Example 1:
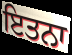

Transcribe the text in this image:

ਇਤਨਾ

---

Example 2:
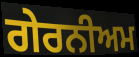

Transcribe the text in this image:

ਗੇਰਨੀਅਮ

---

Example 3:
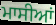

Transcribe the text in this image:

ਮਾਸੀਆਂ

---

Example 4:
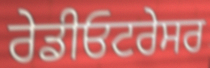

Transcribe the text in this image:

ਰੇਡੀਓਟਰੇਸਰ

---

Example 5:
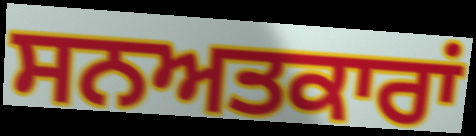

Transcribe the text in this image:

ਸਨਅਤਕਾਰਾਂ